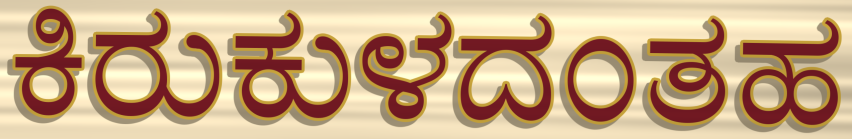
ಕಿರುಕುಳದಂತಹ